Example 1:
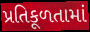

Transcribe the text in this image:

પ્રતિકૂળતામાં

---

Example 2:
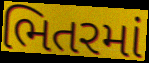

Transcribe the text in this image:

ભિતરમાં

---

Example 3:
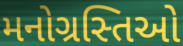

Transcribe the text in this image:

મનોગ્રસ્તિઓ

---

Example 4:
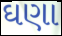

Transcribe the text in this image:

ઘણા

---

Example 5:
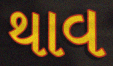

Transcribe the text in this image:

થાવ